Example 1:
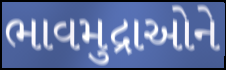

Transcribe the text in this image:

ભાવમુદ્રાઓને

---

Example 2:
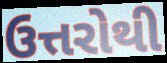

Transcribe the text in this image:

ઉત્તરોથી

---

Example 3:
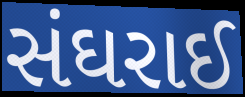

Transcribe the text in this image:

સંઘરાઈ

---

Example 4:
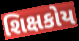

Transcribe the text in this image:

શિક્ષકોય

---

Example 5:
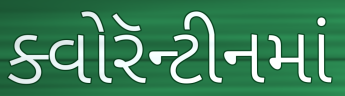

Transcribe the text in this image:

ક્વોરૅન્ટીનમાં